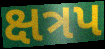
ક્ષત્રપ